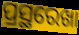
ପ୍ରସ୍ଥରେଖା